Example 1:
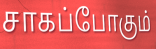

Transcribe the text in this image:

சாகப்போகும்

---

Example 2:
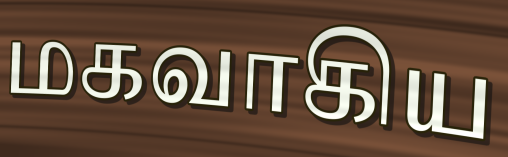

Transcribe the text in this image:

மகவாகிய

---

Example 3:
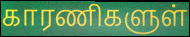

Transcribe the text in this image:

காரணிகளுள்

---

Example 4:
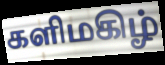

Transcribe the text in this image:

களிமகிழ்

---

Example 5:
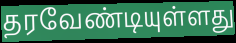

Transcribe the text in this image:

தரவேண்டியுள்ளது